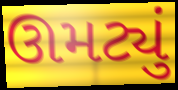
ઊમટ્યું